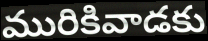
మురికివాడకు